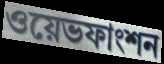
ওয়েভফাংশন